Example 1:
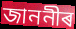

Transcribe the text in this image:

জাননীৰ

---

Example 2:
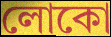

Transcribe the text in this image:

লোকো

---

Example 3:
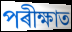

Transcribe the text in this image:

পৰীক্ষাত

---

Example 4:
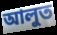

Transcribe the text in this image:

আলুত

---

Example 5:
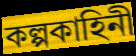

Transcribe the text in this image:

কল্পকাহিনী